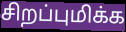
சிறப்புமிக்க